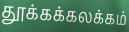
தூக்கக்கலக்கம்